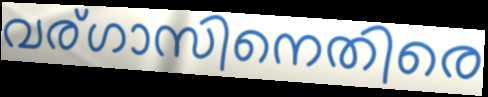
വര്ഗാസിനെതിരെ